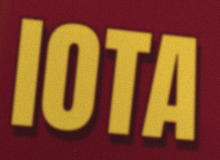
IOTA